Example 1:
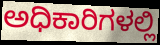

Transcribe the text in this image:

ಅಧಿಕಾರಿಗಳಲ್ಲಿ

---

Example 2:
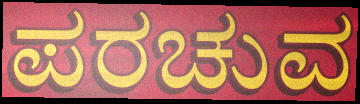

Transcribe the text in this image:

ಪರಚುವ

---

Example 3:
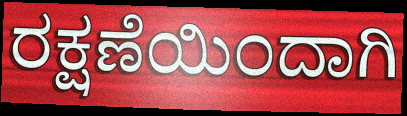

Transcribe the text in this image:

ರಕ್ಷಣೆಯಿಂದಾಗಿ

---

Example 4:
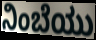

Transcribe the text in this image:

ನಿಂಬೆಯು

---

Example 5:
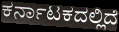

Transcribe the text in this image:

ಕರ್ನಾಟಕದಲ್ಲಿದೆ